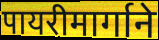
पायरीमार्गाने